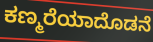
ಕಣ್ಮರೆಯಾದೊಡನೆ